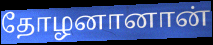
தோழனானான்